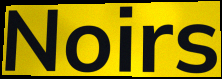
Noirs